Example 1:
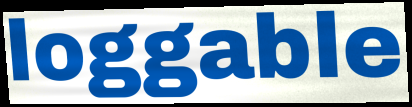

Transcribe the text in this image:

loggable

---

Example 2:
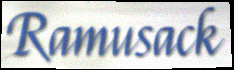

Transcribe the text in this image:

Ramusack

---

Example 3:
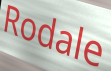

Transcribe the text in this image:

Rodale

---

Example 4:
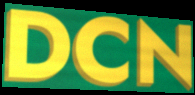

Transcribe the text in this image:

DCN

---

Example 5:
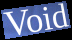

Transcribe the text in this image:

Void